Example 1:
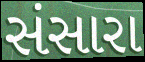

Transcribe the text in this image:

સંસારા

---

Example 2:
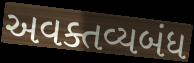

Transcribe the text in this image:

અવક્તવ્યબંધ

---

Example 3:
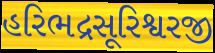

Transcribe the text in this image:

હરિભદ્રસૂરિશ્વરજી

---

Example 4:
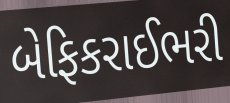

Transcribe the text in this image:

બેફિકરાઈભરી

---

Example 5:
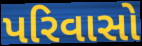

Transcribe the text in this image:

પરિવાસો